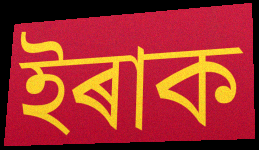
ইৰাক